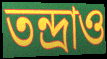
তন্দ্রাও